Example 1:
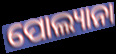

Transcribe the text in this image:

ପୋଲ୍ୟାନା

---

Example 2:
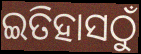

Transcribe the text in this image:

ଇତିହାସଠୁଁ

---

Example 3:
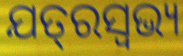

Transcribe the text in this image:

ଯତ୍‌ରସ୍ଵଭ୍ୟ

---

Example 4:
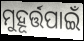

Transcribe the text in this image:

ମୁହୂର୍ତ୍ତପାଇଁ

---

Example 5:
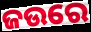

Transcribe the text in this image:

ଜଉରେ